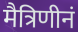
मैत्रिणीनं